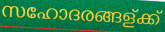
സഹോദരങ്ങള്ക്ക്